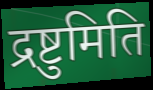
द्रष्टुमिति